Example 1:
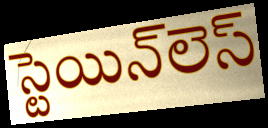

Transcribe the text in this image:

స్టెయిన్‌లెస్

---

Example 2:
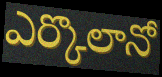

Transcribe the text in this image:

ఎర్కొలానో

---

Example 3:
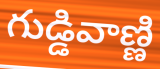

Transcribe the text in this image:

గుడ్డివాణ్ణి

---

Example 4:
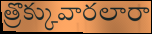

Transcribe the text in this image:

త్రొక్కువారలారా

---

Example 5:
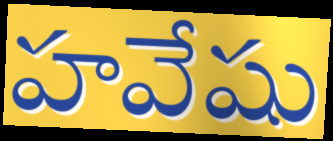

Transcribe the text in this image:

హవేషు